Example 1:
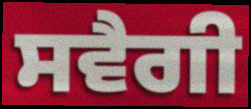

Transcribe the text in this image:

ਸਵੈਗੀ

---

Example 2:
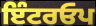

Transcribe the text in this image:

ਇੰਟਰਓਪ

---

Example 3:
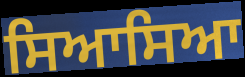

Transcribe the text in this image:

ਸਿਆਸਿਆ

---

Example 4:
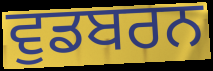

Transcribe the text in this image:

ਵੁਡਬਰਨ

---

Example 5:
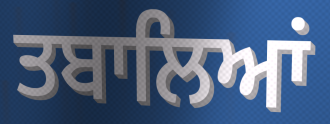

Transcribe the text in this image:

ਤਬਾਲਿਆਂ